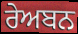
ਰੇਅਬਨ